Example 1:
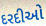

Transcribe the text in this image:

દરદીઓ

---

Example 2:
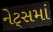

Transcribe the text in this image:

નેટ્સમાં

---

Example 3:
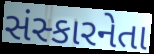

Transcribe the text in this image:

સંસ્કારનેતા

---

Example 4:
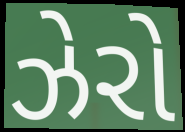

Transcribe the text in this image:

ઝેરો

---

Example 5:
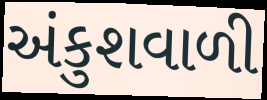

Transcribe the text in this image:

અંકુશવાળી